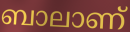
ബാലാണ്